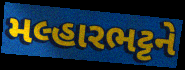
મલ્હારભટ્ટને